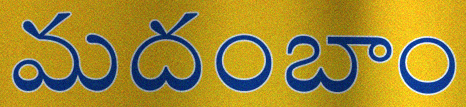
మదంబాం